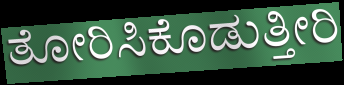
ತೋರಿಸಿಕೊಡುತ್ತೀರಿ